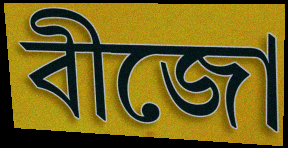
বীজো